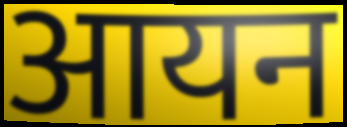
आयन